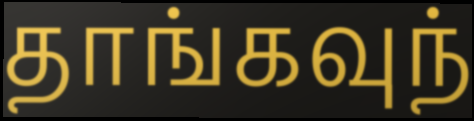
தாங்கவுந்